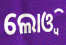
ଲୋଓ୍ବି